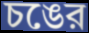
চঙের